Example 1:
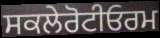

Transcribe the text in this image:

ਸਕਲੇਰੋਟੀਓਰਮ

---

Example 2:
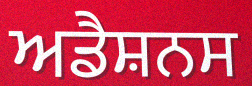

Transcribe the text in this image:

ਅਡੈਸ਼ਨਸ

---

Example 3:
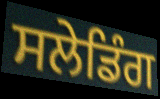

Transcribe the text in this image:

ਸਲੇਡਿੰਗ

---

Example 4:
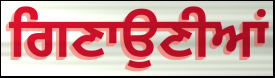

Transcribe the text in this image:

ਗਿਣਾਉਣੀਆਂ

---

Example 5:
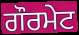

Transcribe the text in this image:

ਗੌਰਮੇਟ